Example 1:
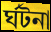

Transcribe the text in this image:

র্ঘটনা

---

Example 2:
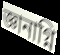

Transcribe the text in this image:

জ্ঞানাগ্নি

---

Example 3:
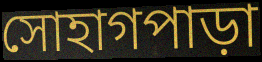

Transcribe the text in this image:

সোহাগপাড়া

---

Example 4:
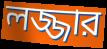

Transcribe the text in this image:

লজ্জার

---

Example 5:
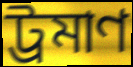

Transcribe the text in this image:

ট্রমাণ